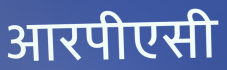
आरपीएसी